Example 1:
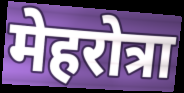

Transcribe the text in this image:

मेहरोत्रा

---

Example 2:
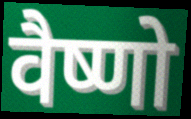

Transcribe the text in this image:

वैष्णो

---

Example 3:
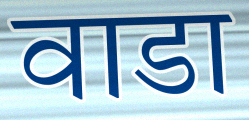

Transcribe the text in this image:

वाडा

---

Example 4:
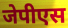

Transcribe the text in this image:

जेपीएस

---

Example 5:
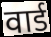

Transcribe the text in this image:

वार्ड